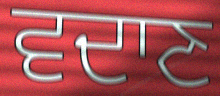
ਵਦਾਣ